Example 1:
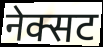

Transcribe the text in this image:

नेक्सट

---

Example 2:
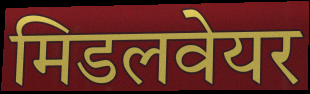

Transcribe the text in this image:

मिडलवेयर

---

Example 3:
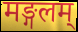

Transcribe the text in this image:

मङ्गलम्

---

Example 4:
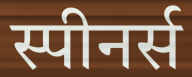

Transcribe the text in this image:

स्पीनर्स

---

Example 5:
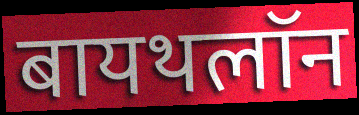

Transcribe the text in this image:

बायथलॉन